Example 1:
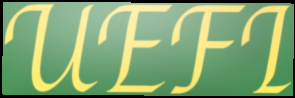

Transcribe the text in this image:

UEFI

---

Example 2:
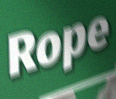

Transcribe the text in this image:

Rope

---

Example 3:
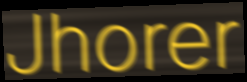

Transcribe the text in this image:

Jhorer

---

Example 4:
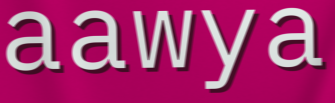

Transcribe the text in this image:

aawya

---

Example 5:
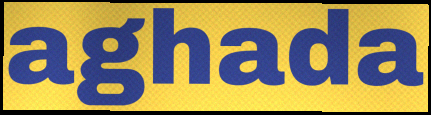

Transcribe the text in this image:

aghada